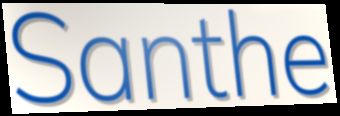
Santhe